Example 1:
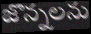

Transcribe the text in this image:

జొన్నలను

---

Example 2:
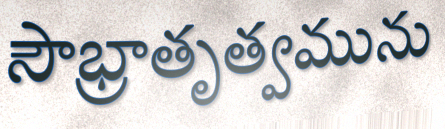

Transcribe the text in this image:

సౌభ్రాతృత్వమును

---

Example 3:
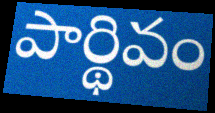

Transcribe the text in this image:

పార్థివం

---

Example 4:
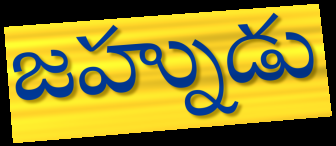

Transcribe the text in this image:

జహ్నుడు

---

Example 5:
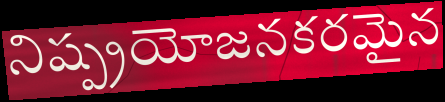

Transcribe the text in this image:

నిష్ప్రయోజనకరమైన